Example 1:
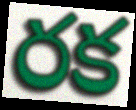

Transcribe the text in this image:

రక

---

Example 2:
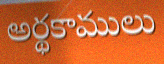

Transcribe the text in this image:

అర్థకాములు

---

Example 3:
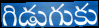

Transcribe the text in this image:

గిడుగుకు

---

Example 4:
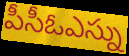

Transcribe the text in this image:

పీసీఓఎస్ను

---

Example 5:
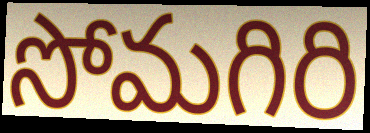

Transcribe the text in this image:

సోమగిరి